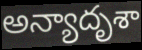
అన్యాదృశా